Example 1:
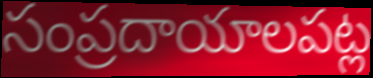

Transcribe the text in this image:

సంప్రదాయాలపట్ల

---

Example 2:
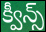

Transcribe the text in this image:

క్వీన్స్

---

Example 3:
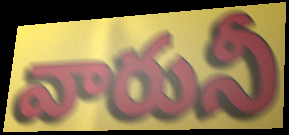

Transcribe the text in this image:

వారునీ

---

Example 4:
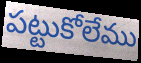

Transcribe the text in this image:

పట్టుకోలేము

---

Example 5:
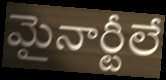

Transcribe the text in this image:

మైనార్టీలే